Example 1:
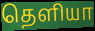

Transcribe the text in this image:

தெளியா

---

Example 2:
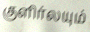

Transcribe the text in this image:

குளிர்லயும்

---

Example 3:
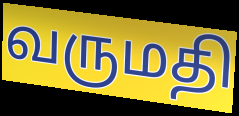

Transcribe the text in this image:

வருமதி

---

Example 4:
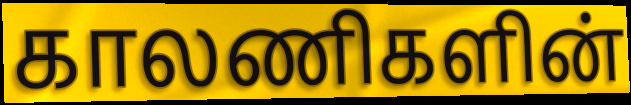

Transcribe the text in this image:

காலணிகளின்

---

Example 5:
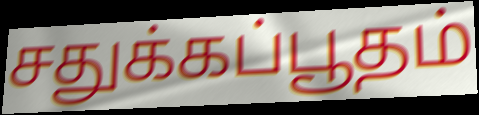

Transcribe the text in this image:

சதுக்கப்பூதம்